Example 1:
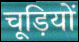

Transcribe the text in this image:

चूड़ियों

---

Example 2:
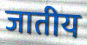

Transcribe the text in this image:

जातीय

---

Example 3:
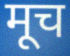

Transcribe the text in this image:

मूच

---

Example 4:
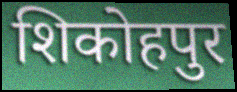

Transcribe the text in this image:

शिकोहपुर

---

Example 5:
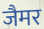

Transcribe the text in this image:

जैमर